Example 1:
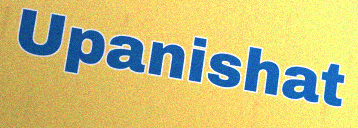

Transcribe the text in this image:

Upanishat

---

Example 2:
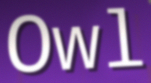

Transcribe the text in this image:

Owl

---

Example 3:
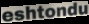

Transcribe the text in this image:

eshtondu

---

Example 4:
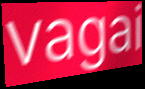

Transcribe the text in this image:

vagai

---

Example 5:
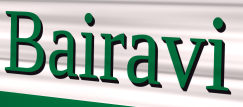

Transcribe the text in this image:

Bairavi